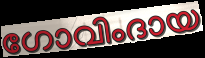
ഗോവിംദായ